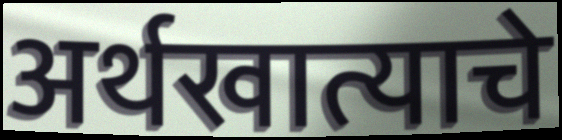
अर्थखात्याचे